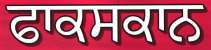
ਫਾਕਸਕਾਨ